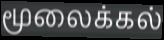
மூலைக்கல்